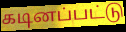
கடினப்பட்டு